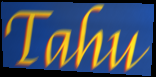
Tahu